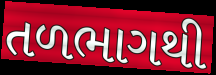
તળભાગથી